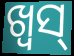
ଖ୍ୱସ୍